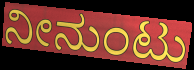
ನೀನುಂಟು